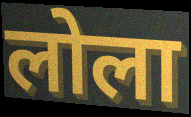
लोला